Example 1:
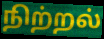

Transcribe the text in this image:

நிற்றல்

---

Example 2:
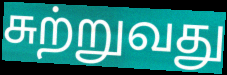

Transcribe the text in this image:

சுற்றுவது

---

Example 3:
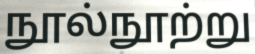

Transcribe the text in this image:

நூல்நூற்று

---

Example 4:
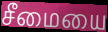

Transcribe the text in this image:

சீமையை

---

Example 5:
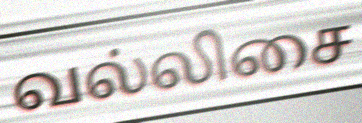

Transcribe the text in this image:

வல்லிசை